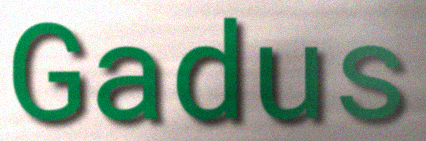
Gadus